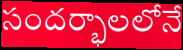
సందర్భాలలోనే